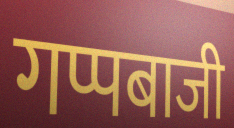
गप्पबाजी